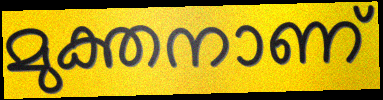
മുക്തനാണ്